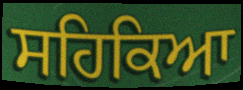
ਸਹਿਕਿਆ